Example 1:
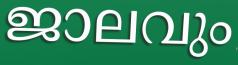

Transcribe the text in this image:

ജാലവും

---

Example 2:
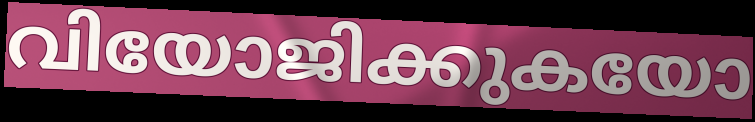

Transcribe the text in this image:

വിയോജിക്കുകയോ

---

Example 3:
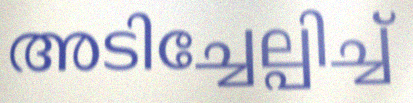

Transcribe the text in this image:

അടിച്ചേല്പിച്ച്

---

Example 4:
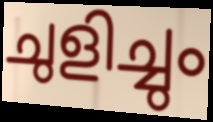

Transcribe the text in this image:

ചുളിച്ചും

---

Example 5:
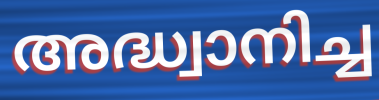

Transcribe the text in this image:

അദ്ധ്വാനിച്ച